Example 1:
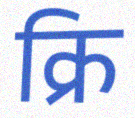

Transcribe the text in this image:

क्रि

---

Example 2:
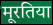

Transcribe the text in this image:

मूरतिया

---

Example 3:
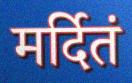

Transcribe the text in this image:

मर्दितं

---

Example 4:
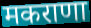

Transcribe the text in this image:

मकराणा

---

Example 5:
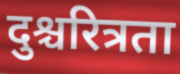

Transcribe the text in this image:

दुश्चरित्रता